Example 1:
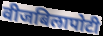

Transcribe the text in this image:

वीजबिलापोटी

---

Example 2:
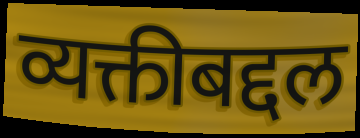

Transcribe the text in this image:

व्यक्तीबद्दल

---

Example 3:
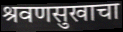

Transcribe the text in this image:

श्रवणसुखाचा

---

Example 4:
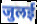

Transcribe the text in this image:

जुलई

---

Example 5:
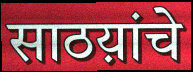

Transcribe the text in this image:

साठय़ांचे